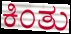
ಕಿಂತು